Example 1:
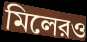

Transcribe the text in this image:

মিলেরও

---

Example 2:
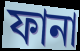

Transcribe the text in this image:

ফানা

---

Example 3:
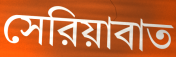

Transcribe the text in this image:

সেরিয়াবাত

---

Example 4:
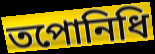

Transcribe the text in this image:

তপোনিধি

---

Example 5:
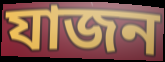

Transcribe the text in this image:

যাজন